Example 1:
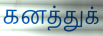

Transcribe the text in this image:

கனத்துக்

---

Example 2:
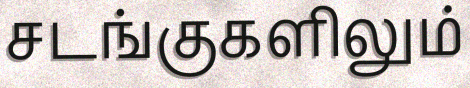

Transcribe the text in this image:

சடங்குகளிலும்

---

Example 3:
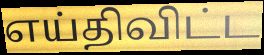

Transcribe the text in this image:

எய்திவிட்ட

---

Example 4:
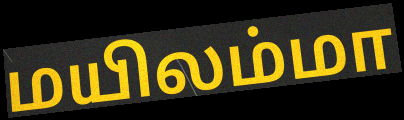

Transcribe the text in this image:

மயிலம்மா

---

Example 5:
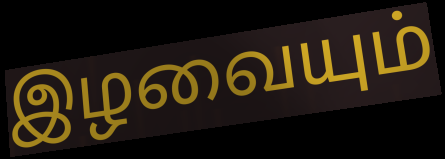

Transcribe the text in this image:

இழவையும்